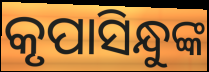
କୃପାସିନ୍ଧୁଙ୍କ